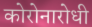
कोरोनारोधी